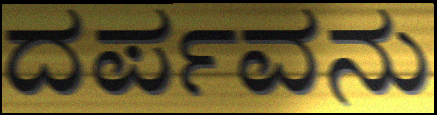
ದರ್ಪವನು